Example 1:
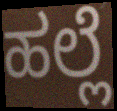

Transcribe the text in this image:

ಹಲ್ಲೆ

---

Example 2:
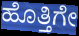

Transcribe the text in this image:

ಹೊತ್ತಿಗೇ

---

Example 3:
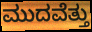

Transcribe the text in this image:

ಮುದವೆತ್ತು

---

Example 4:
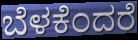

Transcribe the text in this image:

ಬೆಳಕೆಂದರೆ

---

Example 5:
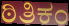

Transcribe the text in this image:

ಠಿತಿಕಂ